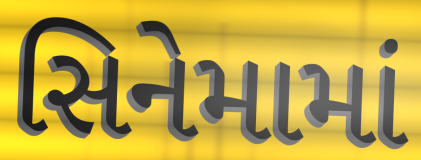
સિનેમામાં